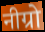
नीग्रो